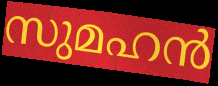
സുമഹൻ